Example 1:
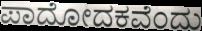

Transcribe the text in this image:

ಪಾದೋದಕವೆಂದು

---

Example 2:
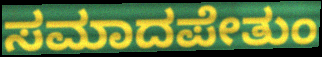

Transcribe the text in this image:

ಸಮಾದಪೇತುಂ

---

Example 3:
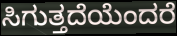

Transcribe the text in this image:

ಸಿಗುತ್ತದೆಯೆಂದರೆ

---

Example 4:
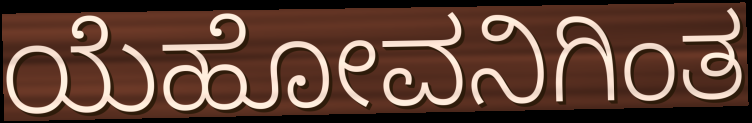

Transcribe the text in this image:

ಯೆಹೋವನಿಗಿಂತ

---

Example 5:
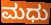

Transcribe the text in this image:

ಮಧು